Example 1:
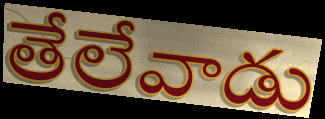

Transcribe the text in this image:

తేలేవాడు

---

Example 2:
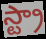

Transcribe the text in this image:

స్ట్రా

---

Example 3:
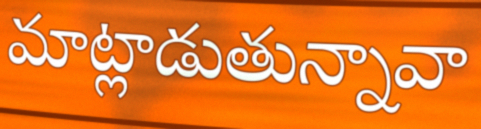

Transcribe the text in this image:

మాట్లాడుతున్నావా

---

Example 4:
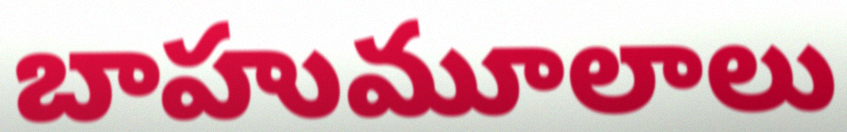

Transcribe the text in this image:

బాహుమూలాలు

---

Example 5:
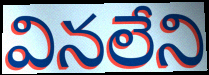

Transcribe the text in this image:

వినలేని